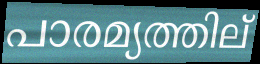
പാരമ്യത്തില്